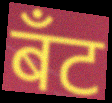
बँट